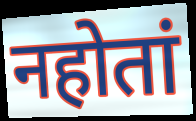
नहोतां